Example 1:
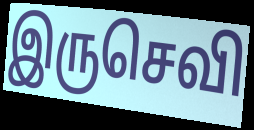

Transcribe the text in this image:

இருசெவி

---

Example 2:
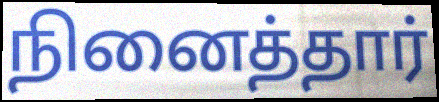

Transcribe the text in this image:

நினைத்தார்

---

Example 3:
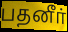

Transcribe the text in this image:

பதனீர்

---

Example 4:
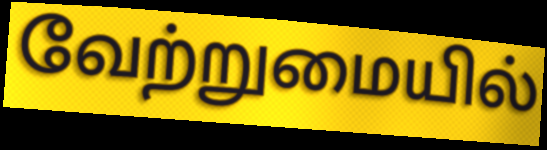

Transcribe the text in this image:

வேற்றுமையில்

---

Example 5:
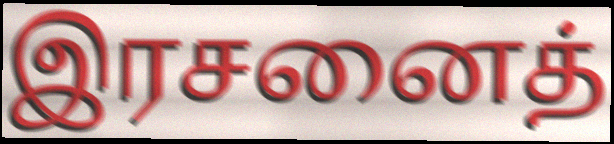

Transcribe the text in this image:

இரசனைத்